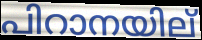
പിറാനയില്